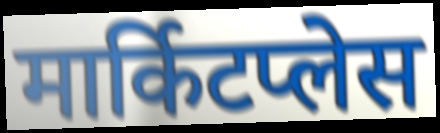
मार्किटप्लेस